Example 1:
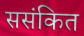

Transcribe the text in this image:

ससंकित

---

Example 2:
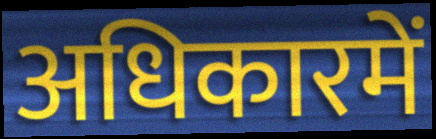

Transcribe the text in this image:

अधिकारमें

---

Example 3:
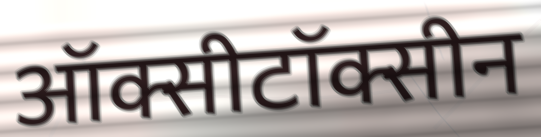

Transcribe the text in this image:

ऑक्सीटॉक्सीन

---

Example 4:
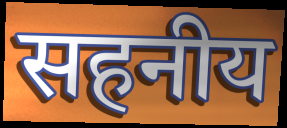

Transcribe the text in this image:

सहनीय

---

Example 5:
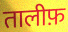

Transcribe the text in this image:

तालीफ़